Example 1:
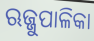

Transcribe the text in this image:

ଋଜ୍ଜୁପାଳିକା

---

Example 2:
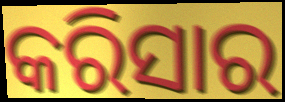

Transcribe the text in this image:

କରିସାର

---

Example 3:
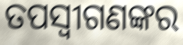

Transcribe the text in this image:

ତପସ୍ୱୀଗଣଙ୍କର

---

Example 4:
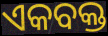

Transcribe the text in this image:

ଏକବକ୍ତ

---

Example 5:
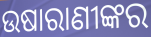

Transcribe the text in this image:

ଉଷାରାଣୀଙ୍କର